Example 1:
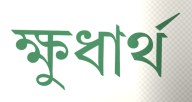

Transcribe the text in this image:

ক্ষুধার্থ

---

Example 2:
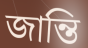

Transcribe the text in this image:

জান্তি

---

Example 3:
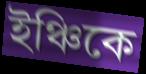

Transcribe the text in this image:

ইঞ্চিকে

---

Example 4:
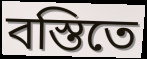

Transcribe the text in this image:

বস্তিতে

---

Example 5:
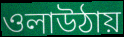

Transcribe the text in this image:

ওলাউঠায়